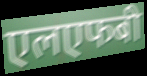
एलएफबी